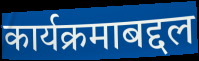
कार्यक्रमाबद्दल